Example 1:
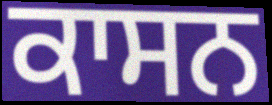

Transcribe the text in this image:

ਕਾਸਨ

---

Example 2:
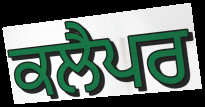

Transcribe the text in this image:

ਕਲੈਪਰ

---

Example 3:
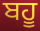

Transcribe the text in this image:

ਬਹੂ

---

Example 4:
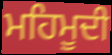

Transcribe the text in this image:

ਮਹਿਮੂਦੀ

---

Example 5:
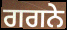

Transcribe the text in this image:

ਗਗਨੇ